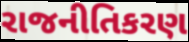
રાજનીતિકરણ